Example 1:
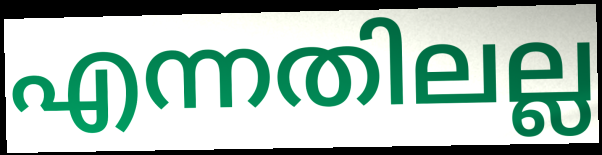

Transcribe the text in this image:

എന്നതിലല്ല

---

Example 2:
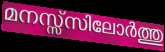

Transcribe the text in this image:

മനസ്സ്സിലോർത്തു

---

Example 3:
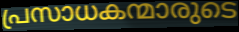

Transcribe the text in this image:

പ്രസാധകന്മാരുടെ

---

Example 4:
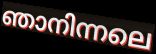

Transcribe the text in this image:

ഞാനിന്നലെ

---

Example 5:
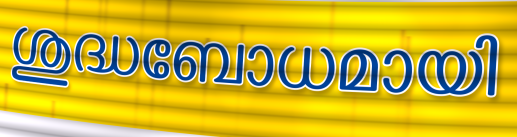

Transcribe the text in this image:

ശുദ്ധബോധമായി